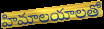
హిమాలయాలతో